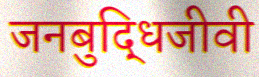
जनबुद्धिजीवी